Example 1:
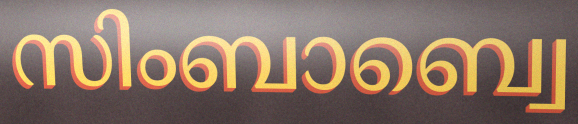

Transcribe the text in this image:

സിംബാബ്വെ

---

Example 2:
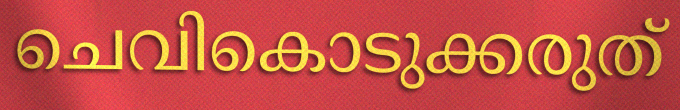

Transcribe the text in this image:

ചെവികൊടുക്കരുത്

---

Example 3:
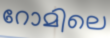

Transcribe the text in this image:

റോമിലെ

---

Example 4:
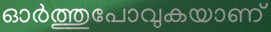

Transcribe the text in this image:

ഓർത്തുപോവുകയാണ്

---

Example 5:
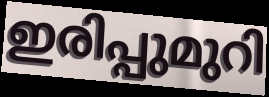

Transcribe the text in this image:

ഇരിപ്പുമുറി